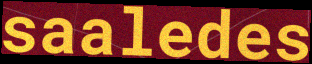
saaledes